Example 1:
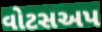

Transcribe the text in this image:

વોટસઅપ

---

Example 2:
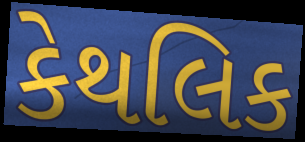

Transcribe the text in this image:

કેથલિક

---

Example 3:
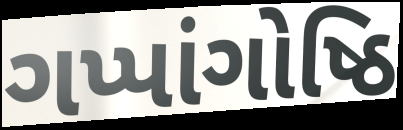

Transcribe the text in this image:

ગપ્પાંગોષ્ઠિ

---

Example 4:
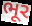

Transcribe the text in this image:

ભૂર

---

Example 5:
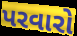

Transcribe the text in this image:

પરવારો